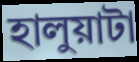
হালুয়াটা